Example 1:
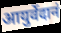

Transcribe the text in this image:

आयुर्वेदानं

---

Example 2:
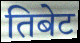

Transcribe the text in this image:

तिबेट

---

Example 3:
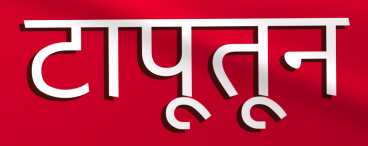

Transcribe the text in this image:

टापूतून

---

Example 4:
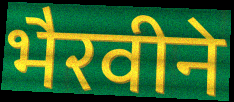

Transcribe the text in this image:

भैरवीने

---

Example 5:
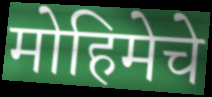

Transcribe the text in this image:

मोहिमेचे